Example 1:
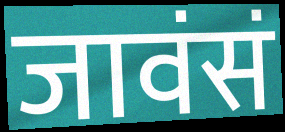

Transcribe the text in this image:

जावंसं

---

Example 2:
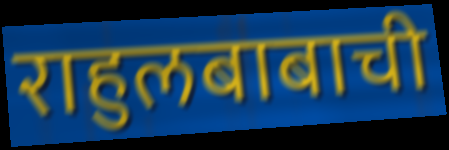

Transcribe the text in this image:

राहुलबाबाची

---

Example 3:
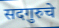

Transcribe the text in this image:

सदगुरुचे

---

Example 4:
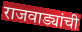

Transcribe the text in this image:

राजवाड्यांची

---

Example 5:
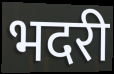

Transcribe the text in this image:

भदरी